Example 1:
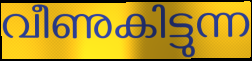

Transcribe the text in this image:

വീണുകിട്ടുന്ന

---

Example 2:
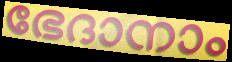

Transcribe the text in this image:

ഭേദാനാം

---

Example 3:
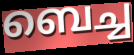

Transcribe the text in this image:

ബെച്ച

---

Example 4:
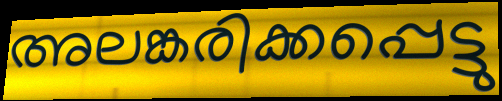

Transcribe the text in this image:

അലങ്കരിക്കപ്പെട്ടു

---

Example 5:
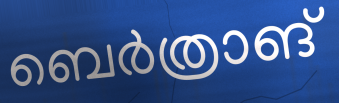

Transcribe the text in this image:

ബെർത്രാങ്